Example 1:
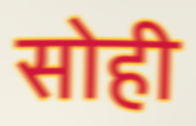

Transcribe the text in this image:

सोही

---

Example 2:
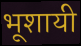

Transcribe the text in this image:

भूशायी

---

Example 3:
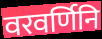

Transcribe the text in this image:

वरवर्णिनि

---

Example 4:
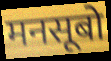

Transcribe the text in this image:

मनसूबो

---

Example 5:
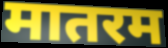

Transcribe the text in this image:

मातरम